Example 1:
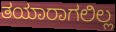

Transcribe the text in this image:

ತಯಾರಾಗಲಿಲ್ಲ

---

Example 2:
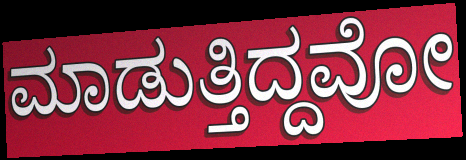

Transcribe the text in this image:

ಮಾಡುತ್ತಿದ್ದವೋ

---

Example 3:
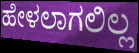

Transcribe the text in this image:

ಹೇಳಲಾಗಲಿಲ್ಲ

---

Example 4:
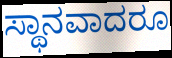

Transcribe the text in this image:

ಸ್ಥಾನವಾದರೂ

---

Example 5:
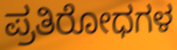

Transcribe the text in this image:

ಪ್ರತಿರೋಧಗಳ